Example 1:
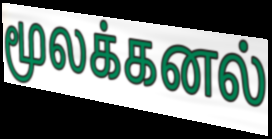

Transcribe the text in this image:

மூலக்கனல்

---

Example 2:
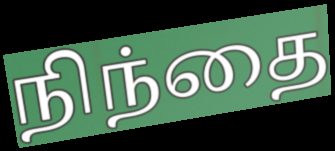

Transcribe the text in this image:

நிந்தை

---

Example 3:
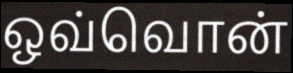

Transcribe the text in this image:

ஒவ்வொன்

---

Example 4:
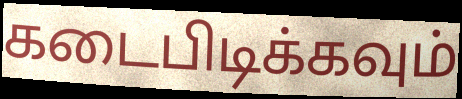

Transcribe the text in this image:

கடைபிடிக்கவும்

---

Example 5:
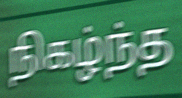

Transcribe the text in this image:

நிகழ்ந்த